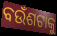
ବଉଁଶଟାକୁ